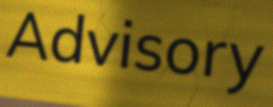
Advisory